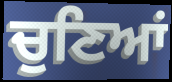
ਚੁਣਿਆਂ